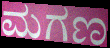
ಮಗಣ